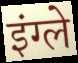
इंग्ले